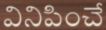
వినిపించే